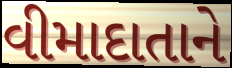
વીમાદાતાને